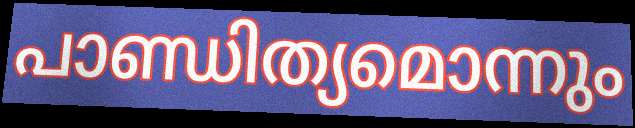
പാണ്ഡിത്യമൊന്നും